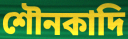
শৌনকাদি